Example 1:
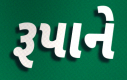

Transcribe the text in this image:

રૂપાને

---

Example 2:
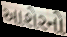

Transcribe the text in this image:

આશેરનો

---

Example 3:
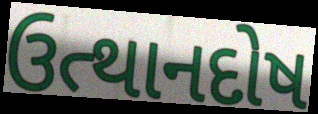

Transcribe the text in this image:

ઉત્થાનદોષ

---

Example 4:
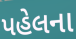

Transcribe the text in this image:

પહેલના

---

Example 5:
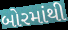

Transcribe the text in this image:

બોરમાંથી